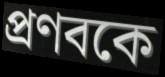
প্রণবকে